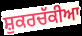
ਸ਼ੁਕਰਚੱਕੀਆ